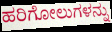
ಹರಿಗೋಲುಗಳನ್ನು